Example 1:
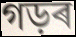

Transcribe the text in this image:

গড়ৰ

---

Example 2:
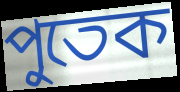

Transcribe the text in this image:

পুতেক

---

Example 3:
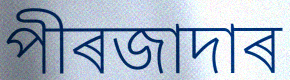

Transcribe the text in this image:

পীৰজাদাৰ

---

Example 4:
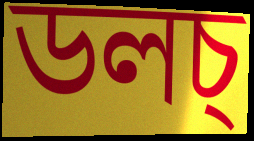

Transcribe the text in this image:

ডলচ্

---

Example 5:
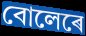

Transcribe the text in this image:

বোলেৰে